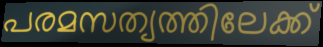
പരമസത്യത്തിലേക്ക്